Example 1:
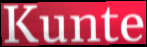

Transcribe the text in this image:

Kunte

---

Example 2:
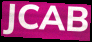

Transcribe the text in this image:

JCAB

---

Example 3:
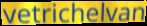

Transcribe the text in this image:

vetrichelvan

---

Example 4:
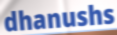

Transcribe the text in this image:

dhanushs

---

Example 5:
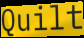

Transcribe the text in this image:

Quilt